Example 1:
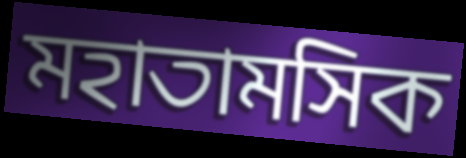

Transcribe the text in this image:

মহাতামসিক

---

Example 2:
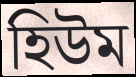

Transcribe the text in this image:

হিউম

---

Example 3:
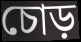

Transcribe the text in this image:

চোড়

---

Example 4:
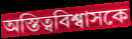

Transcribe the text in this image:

অস্তিত্ববিশ্বাসকে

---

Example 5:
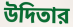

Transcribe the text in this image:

উদিতার